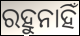
ରହୁନାହିଁ